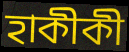
হাকীকী